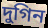
দুগিন